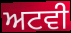
ਅਟਵੀ